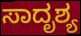
ಸಾದೃಶ್ಯ